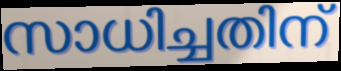
സാധിച്ചതിന്